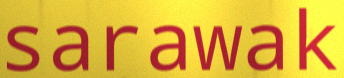
sarawak